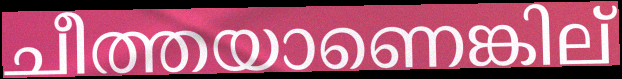
ചീത്തയാണെങ്കില്